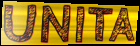
UNITA